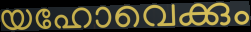
യഹോവെക്കും